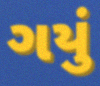
ગયું